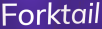
Forktail